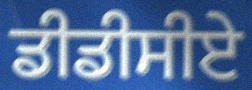
ਡੀਡੀਸੀਏ